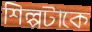
শিল্পটাকে